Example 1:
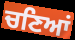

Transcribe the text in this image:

ਚਣਿਆਂ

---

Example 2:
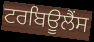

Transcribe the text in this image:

ਟਰਬਿਊਲੈਂਸ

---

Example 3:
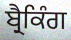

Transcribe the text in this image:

ਬ੍ਰੈਕਿੰਗ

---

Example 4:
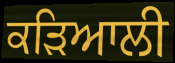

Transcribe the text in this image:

ਕੜਿਆਲੀ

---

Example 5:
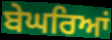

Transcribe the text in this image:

ਬੇਘਰਿਆਂ